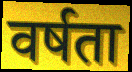
वर्षता